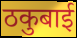
ठकुबाई